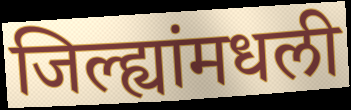
जिल्ह्यांमधली